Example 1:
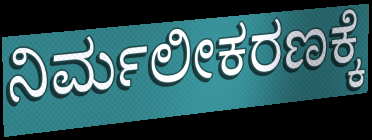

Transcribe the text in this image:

ನಿರ್ಮಲೀಕರಣಕ್ಕೆ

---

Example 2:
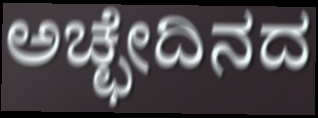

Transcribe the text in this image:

ಅಚ್ಛೇದಿನದ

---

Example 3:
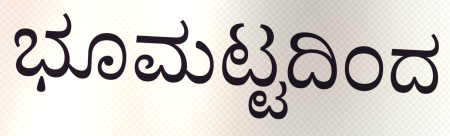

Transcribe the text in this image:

ಭೂಮಟ್ಟದಿಂದ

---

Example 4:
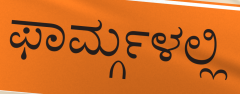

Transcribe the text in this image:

ಫಾರ್ಮ್ಗಳಲ್ಲಿ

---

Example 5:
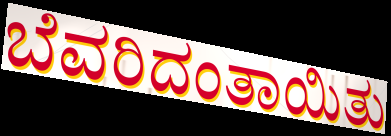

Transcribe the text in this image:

ಬೆವರಿದಂತಾಯಿತು